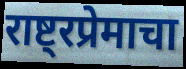
राष्ट्रप्रेमाचा